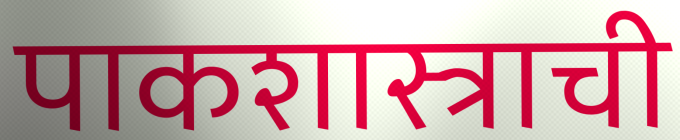
पाकशास्त्राची